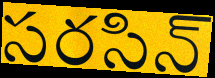
సరసిన్